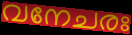
വനേചരഃ